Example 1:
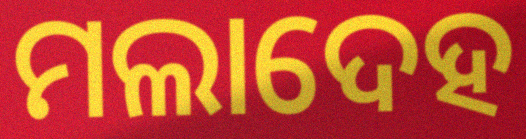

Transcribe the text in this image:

ମଲାଦେହ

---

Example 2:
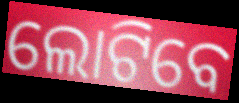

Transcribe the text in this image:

ଲୋଟିବେ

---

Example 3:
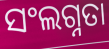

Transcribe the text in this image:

ସଂଲଗ୍ନତା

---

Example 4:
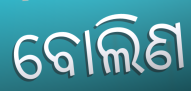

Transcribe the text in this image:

ବୋଲିଣ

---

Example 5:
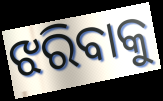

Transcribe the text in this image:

ଝରିବାକୁ